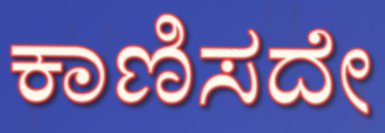
ಕಾಣಿಸದೇ